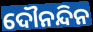
ଦୌନନ୍ଦିନ